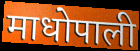
माधोपाली